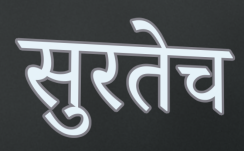
सुरतेच